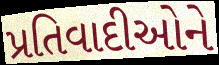
પ્રતિવાદીઓને